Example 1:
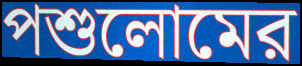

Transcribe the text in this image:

পশুলোমের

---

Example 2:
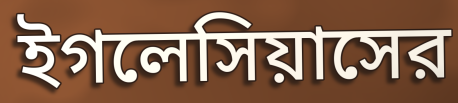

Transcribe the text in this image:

ইগলেসিয়াসের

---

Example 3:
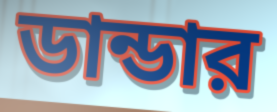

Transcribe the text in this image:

ডান্ডার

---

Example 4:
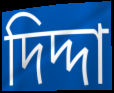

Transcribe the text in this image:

দিদ্দা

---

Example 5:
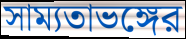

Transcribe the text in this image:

সাম্যতাভঙ্গের